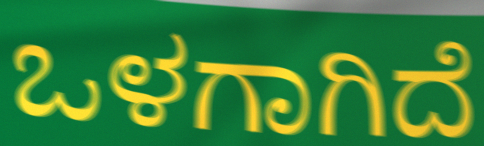
ಒಳಗಾಗಿದೆ